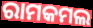
ରାମକମଲ